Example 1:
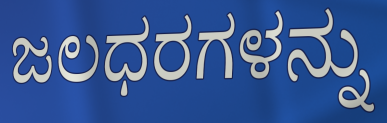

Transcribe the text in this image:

ಜಲಧರಗಳನ್ನು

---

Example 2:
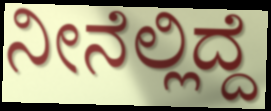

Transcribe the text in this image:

ನೀನೆಲ್ಲಿದ್ದೆ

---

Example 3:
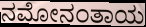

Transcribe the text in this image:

ನಮೋನಂತಾಯ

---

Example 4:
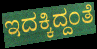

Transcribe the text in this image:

ಇದಕ್ಕಿದ್ದಂತೆ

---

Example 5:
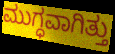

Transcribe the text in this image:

ಮುಗ್ಧವಾಗಿತ್ತು